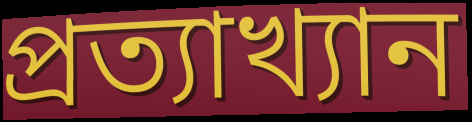
প্রত্যাখ্যান